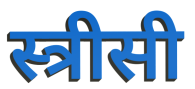
स्त्रीसी